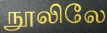
நூலிலே